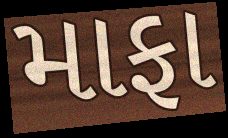
માફા